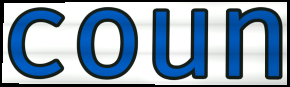
coun